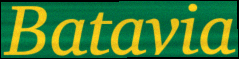
Batavia